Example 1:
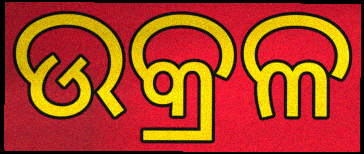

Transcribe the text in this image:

ଉକ୍ରଳ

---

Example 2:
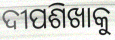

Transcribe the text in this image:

ଦୀପଶିଖାକୁ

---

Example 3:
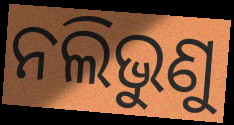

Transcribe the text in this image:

ନଲିଭୁଣୁ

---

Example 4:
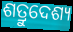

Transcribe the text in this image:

ଶତ୍ରୁଦେଶ୍ୟ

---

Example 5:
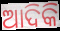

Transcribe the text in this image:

ଆଦିକି